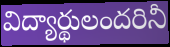
విద్యార్థులందరినీ